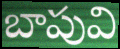
బాపువి